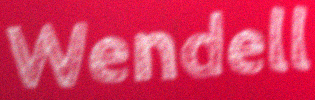
Wendell